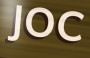
JOC